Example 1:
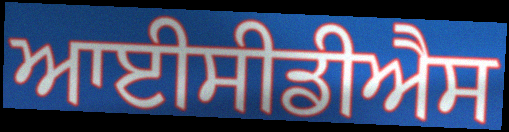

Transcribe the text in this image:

ਆਈਸੀਡੀਐਸ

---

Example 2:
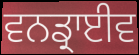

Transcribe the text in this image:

ਵਨਡ੍ਰਾਈਵ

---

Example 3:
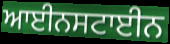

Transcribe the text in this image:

ਆਈਨਸਟਾਈਨ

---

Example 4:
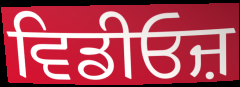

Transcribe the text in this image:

ਵਿਡੀਓਜ਼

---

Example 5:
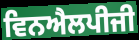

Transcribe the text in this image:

ਵਿਨਐਲਪੀਜੀ